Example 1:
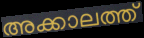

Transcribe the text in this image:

അക്കാലത്ത്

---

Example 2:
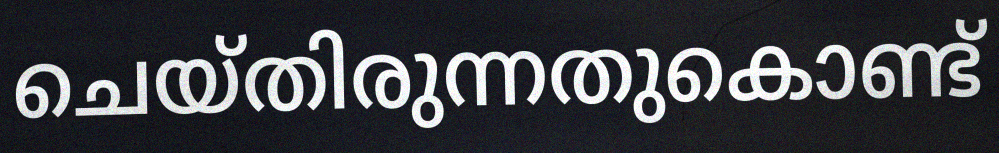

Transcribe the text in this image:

ചെയ്തിരുന്നതുകൊണ്ട്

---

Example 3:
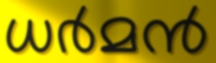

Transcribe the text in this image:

ധർമൻ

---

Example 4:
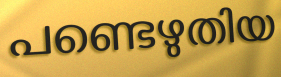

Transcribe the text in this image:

പണ്ടെഴുതിയ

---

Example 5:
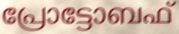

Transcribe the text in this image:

പ്രോട്ടോബഫ്